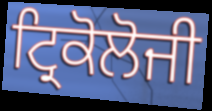
ਟ੍ਰਿਕੋਲੋਜੀ